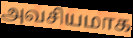
அவசியமாக